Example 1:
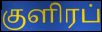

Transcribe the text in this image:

குளிரப்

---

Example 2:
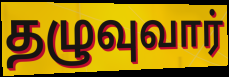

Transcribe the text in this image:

தழுவுவார்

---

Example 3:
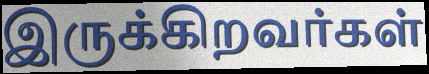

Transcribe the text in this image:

இருக்கிறவர்கள்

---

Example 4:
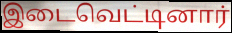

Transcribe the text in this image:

இடைவெட்டினார்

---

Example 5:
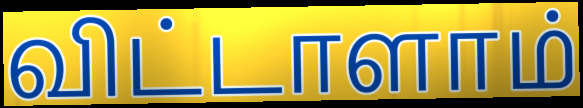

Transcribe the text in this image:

விட்டாளாம்